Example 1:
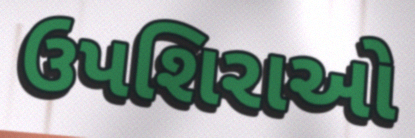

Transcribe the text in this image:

ઉપશિરાઓ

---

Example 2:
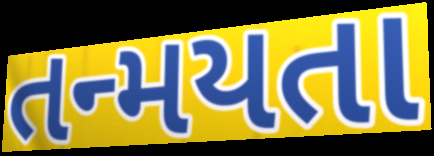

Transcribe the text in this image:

તન્મયતા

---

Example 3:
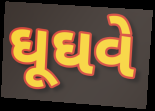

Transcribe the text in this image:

ઘૂઘવે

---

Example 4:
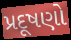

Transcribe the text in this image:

પ્રદૂષણો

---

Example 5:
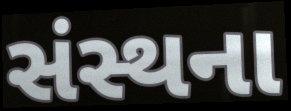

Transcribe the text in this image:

સંસ્થના